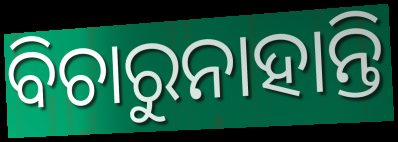
ବିଚାରୁନାହାନ୍ତି